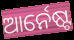
ଆର୍ନେଷ୍ଟ